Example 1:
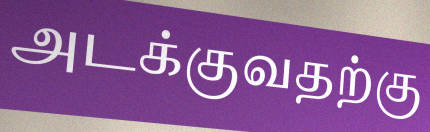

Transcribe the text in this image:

அடக்குவதற்கு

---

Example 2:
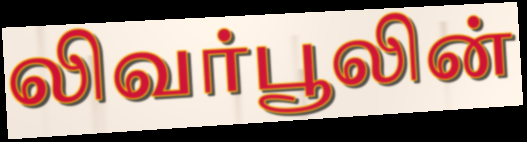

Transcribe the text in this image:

லிவர்பூலின்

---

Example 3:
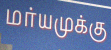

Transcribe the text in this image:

மர்யமுக்கு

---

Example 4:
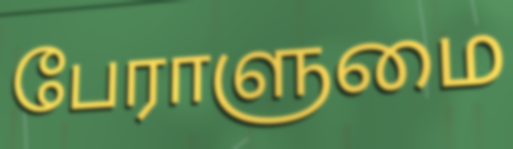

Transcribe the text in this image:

பேராளுமை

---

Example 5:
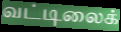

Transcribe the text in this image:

வட்டிலைக்